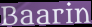
Baarin